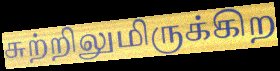
சுற்றிலுமிருக்கிற